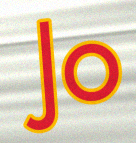
Jo